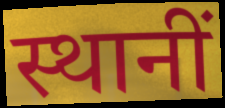
स्थानीं